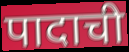
पादाची